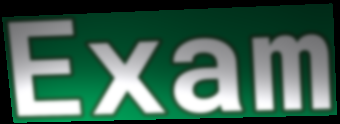
Exam